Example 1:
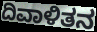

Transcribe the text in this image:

ದಿವಾಳಿತನ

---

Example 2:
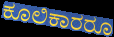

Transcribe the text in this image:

ಕೂಲಿಕಾರರೂ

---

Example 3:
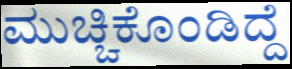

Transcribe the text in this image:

ಮುಚ್ಚಿಕೊಂಡಿದ್ದೆ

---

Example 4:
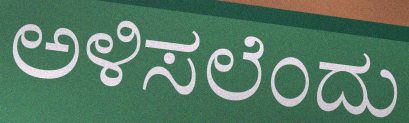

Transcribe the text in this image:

ಅಳಿಸಲೆಂದು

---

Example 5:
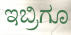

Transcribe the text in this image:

ಇಬ್ರಿಗೂ